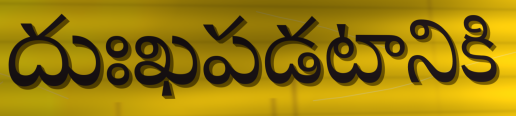
దుఃఖపడటానికి